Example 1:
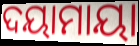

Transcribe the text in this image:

ଦୟାମାୟା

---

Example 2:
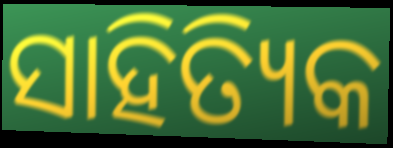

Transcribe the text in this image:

ସାହିତ୍ୟିକ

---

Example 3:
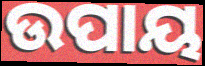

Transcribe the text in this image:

ଉପାୟ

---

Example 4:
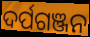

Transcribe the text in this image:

ଦର୍ପଗଞ୍ଜନ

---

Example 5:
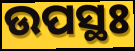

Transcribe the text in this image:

ଉପସ୍ଥଃ